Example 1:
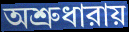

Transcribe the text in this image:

অশ্রুধারায়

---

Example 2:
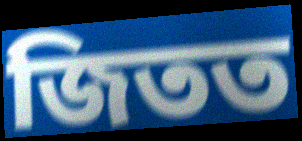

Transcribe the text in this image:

জিতত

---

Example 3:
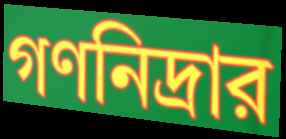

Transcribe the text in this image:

গণনিদ্রার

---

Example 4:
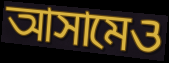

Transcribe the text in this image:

আসামেও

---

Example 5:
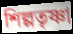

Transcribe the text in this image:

শিল্পতৃষ্ণা